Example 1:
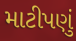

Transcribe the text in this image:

માટીપણું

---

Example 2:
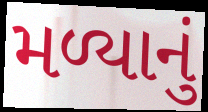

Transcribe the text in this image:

મળ્યાનું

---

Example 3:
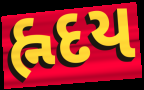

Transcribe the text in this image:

હ્નદય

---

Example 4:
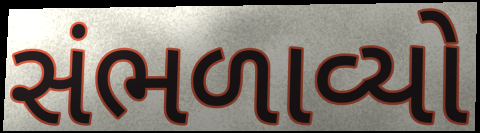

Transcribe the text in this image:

સંભળાવ્યો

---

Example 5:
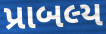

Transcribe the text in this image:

પ્રાબલ્ય